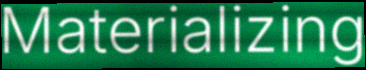
Materializing